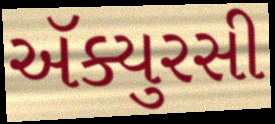
ઍક્યુરસી